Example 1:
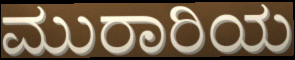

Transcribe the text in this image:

ಮುರಾರಿಯ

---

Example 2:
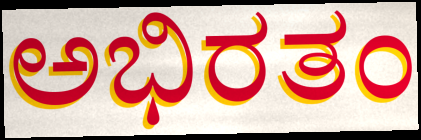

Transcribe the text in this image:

ಅಭಿರತಂ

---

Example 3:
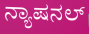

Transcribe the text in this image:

ನ್ಯಾಷನಲ್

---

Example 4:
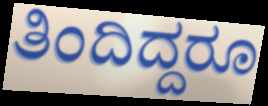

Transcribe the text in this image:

ತಿಂದಿದ್ದರೂ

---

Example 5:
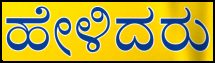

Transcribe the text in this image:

ಹೇಳಿದರು